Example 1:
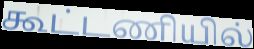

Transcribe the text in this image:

கூட்டணியில்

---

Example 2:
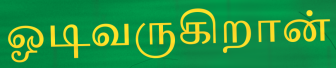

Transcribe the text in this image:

ஓடிவருகிறான்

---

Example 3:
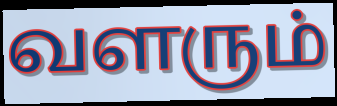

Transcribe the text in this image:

வளரும்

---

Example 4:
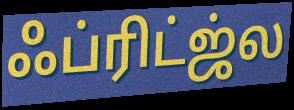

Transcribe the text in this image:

ஃப்ரிட்ஜ்ல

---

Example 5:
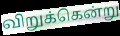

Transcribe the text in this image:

விறுக்கென்று